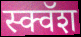
स्क्वॅश